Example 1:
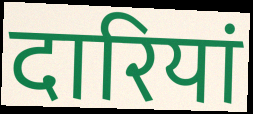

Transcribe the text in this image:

दारियां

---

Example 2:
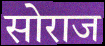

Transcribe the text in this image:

सोराज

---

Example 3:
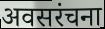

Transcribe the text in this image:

अवसरंचना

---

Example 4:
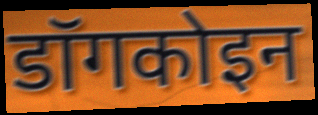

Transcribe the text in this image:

डॉगकोइन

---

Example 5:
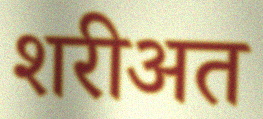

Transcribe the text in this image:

शरीअत